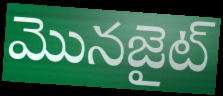
మొనజైట్